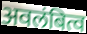
अवलंबित्व